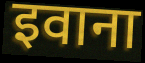
इवाना